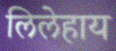
लिलेहाय